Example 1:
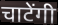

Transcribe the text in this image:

चाटेंगी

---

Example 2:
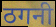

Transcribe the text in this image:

ठगनी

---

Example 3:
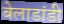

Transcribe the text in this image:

बेलाडांडी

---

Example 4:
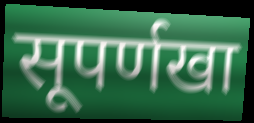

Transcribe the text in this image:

सूपर्णखा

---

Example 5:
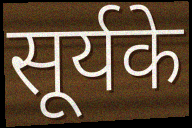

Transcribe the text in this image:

सूर्यके